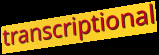
transcriptional